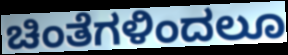
ಚಿಂತೆಗಳಿಂದಲೂ